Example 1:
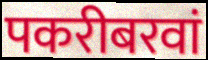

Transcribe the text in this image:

पकरीबरवां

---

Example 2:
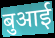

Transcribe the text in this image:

बुआई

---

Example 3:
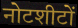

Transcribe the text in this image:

नोटशीटों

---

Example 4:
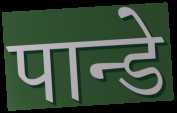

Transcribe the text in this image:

पान्डे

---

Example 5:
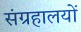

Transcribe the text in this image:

संग्रहालयों